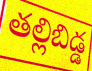
తల్లిబిడ్డ